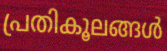
പ്രതികൂലങ്ങൾ